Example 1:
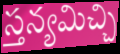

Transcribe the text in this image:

స్తన్యమిచ్చి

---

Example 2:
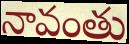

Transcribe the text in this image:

నావంతు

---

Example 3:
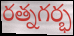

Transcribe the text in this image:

రత్నగర్భ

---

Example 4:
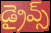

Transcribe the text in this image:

డ్రైవ్స్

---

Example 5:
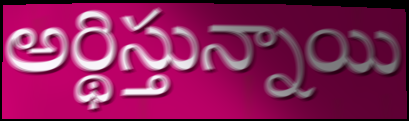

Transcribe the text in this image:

అర్థిస్తున్నాయి